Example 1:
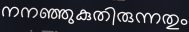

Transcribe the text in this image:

നനഞ്ഞുകുതിരുന്നതും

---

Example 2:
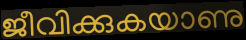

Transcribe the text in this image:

ജീവിക്കുകയാണു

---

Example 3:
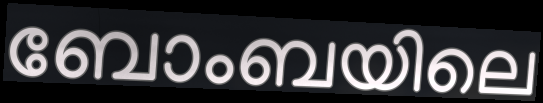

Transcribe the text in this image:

ബോംബയിലെ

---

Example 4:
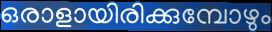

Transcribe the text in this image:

ഒരാളായിരിക്കുമ്പോഴും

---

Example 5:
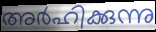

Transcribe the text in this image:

അർഹിക്കുന്നു